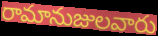
రామానుజులవారు